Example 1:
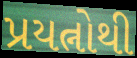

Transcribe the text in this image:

પ્રયત્નોથી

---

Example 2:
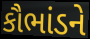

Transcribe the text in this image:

કૌભાંડને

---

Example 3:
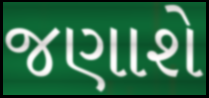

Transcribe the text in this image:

જણાશે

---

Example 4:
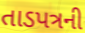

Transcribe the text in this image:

તાડપત્રની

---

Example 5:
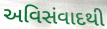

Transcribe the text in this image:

અવિસંવાદથી